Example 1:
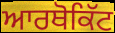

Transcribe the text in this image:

ਆਰਥੋਕਿੱਟ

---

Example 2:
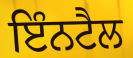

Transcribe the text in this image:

ਇੰਨਟੈਲ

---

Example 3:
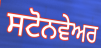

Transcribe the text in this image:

ਸਟੋਨਵੇਅਰ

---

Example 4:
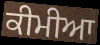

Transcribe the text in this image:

ਕੀਮੀਆ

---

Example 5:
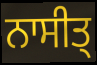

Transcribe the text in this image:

ਨਾਸੀਤ੍